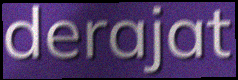
derajat